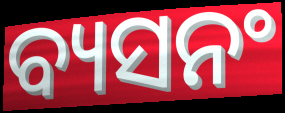
ବ୍ୟସନଂ